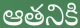
ఆతనికి